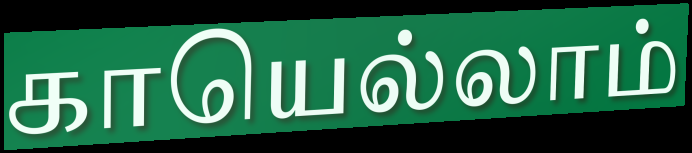
காயெல்லாம்